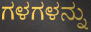
ಗಳಗಳನ್ನು